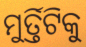
ମୁର୍ତ୍ତିଟିକୁ